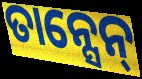
ତାନ୍ସେନ୍